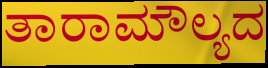
ತಾರಾಮೌಲ್ಯದ